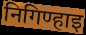
निगिण्हाइ